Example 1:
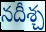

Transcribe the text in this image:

నదీశ్చ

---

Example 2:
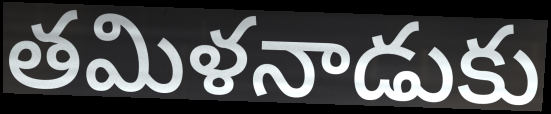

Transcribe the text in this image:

తమిళనాడుకు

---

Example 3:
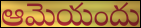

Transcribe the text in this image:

ఆమెయందు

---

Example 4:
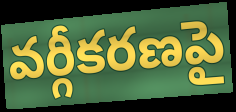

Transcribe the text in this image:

వర్గీకరణపై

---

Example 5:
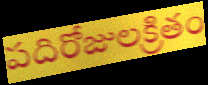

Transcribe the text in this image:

పదిరోజులక్రితం